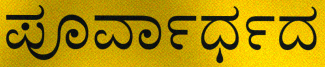
ಪೂರ್ವಾರ್ಧದ